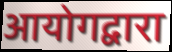
आयोगद्वारा